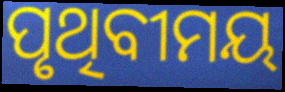
ପୃଥିବୀମୟ